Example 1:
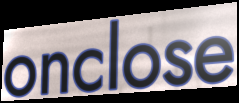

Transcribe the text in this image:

onclose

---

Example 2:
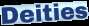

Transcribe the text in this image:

Deities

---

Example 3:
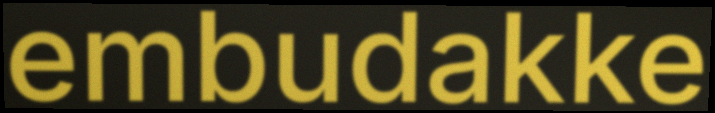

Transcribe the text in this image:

embudakke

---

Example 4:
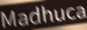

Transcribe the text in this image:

Madhuca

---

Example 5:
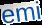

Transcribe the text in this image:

emi